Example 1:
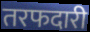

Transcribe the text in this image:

तरफदारी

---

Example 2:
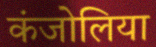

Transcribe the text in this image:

कंजोलिया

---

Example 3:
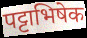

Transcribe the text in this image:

पट्टाभिषेक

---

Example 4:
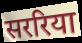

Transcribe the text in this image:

सररिया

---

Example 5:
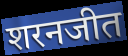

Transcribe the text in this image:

शरनजीत